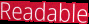
Readable